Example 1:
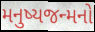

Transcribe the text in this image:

મનુષ્યજન્મનો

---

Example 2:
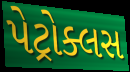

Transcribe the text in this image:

પેટ્રોક્લસ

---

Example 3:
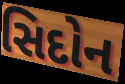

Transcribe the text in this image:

સિદોન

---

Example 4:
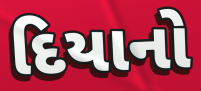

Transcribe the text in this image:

દિયાનો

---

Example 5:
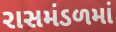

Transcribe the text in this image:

રાસમંડળમાં